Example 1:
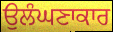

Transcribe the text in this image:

ਉਲੰਘਣਾਕਾਰ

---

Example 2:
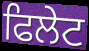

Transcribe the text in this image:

ਫਿਲੇਟ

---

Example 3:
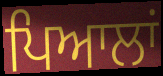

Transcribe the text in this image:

ਪਿਆਲਾਂ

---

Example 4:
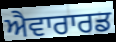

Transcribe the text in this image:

ਐਵਾਰਾਰਡ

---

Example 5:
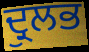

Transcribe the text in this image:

ਦ੍ਰੁਲਭ